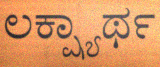
ಲಕ್ಷ್ಯಾರ್ಥ